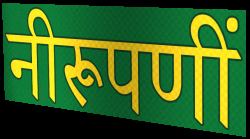
नीरूपणीं